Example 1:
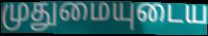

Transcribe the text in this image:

முதுமையுடைய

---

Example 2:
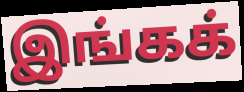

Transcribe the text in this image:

இங்கக்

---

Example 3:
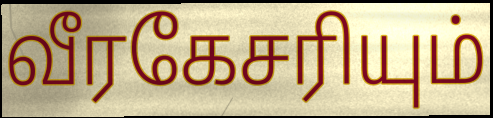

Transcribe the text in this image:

வீரகேசரியும்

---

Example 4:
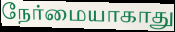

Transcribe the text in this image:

நேர்மையாகாது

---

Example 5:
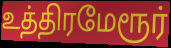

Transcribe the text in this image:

உத்திரமேரூர்